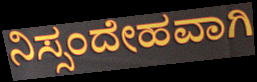
ನಿಸ್ಸಂದೇಹವಾಗಿ